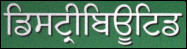
ਡਿਸਟ੍ਰੀਬਿਊਟਿਡ